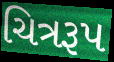
ચિત્રરૂપ